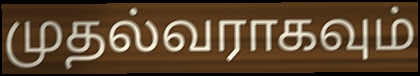
முதல்வராகவும்